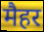
मैहर